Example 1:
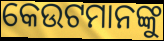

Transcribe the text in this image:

କେଉଟମାନଙ୍କୁ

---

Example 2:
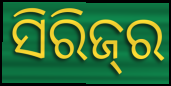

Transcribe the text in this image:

ସିରିଜ୍‌ର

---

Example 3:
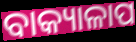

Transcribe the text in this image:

ବାକ୍ୟାଳାପ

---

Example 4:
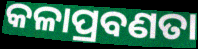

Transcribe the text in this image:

କଳାପ୍ରବଣତା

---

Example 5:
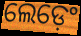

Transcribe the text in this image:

ଲେଡ଼େଂ